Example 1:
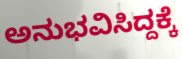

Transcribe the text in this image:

ಅನುಭವಿಸಿದ್ದಕ್ಕೆ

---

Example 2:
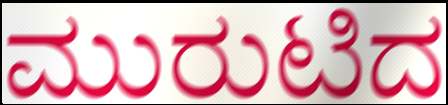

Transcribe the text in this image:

ಮುರುಟಿದ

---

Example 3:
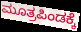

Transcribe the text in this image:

ಮೂತ್ರಪಿಂಡಕ್ಕೆ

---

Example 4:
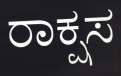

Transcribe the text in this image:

ರಾಕ್ಷಸ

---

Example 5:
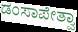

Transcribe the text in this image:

ಡಂಸಾಪೇತ್ವಾ